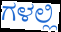
ಗಳಲ್ಲಿ